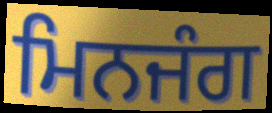
ਮਿਨਜੰਗ